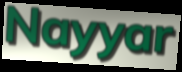
Nayyar